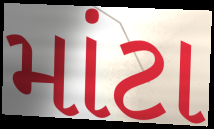
માંટા